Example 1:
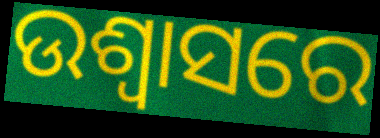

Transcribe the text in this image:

ଉଶ୍ଵାସରେ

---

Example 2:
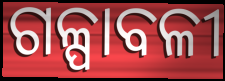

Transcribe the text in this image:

ଗଳ୍ପାବଳୀ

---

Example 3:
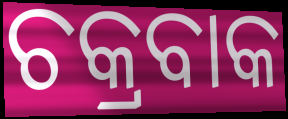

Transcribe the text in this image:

ଚକ୍ରବାକ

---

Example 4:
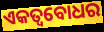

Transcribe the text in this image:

ଏକତ୍ୱବୋଧର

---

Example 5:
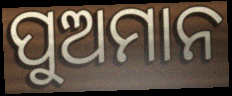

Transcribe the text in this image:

ପୁଅମାନ